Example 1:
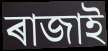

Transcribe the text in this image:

ৰাজাই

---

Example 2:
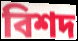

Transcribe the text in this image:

বিশদ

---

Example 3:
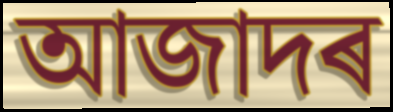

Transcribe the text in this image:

আজাদৰ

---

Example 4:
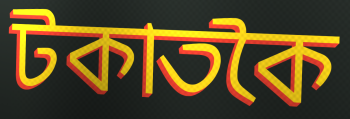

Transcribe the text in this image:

টকাতকৈ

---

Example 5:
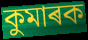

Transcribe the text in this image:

কুমাৰক